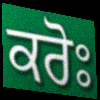
ਕਰੋਃ